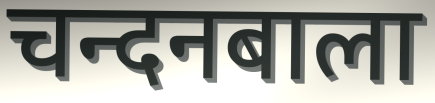
चन्दनबाला